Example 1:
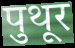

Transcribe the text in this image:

पुथूर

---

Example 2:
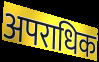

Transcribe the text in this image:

अपराधिक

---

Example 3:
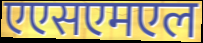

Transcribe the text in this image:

एएसएमएल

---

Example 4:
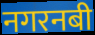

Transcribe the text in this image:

नगरनबी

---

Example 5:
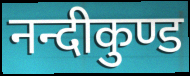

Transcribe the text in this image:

नन्दीकुण्ड